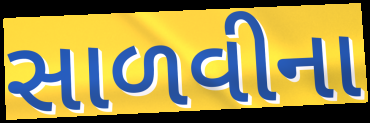
સાળવીના